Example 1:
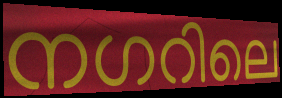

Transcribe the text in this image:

നഗറിലെ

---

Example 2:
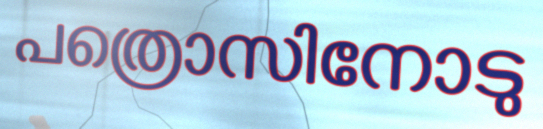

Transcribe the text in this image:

പത്രൊസിനോടു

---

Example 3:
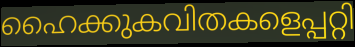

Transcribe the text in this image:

ഹൈക്കുകവിതകളെപ്പറ്റി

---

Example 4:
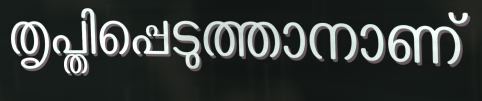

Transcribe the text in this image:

തൃപ്തിപ്പെടുത്താനാണ്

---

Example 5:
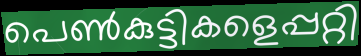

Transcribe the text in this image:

പെൺകുട്ടികളെപ്പറ്റി